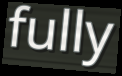
fully